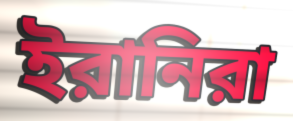
ইরানিরা